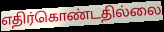
எதிர்கொண்டதில்லை